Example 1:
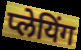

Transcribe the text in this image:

प्लेयिंग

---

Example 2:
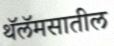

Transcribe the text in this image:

थॅलॅमसातील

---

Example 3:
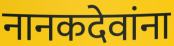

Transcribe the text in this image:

नानकदेवांना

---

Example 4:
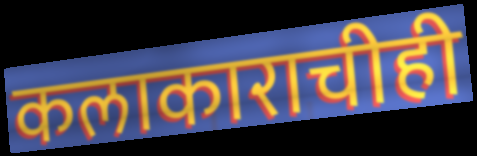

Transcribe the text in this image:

कलाकाराचीही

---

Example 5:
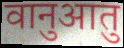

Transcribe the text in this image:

वानुआतु